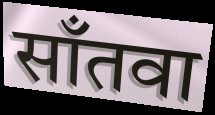
साँतवा